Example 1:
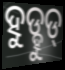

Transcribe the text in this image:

ହୁଡ୍ହୁଡ୍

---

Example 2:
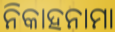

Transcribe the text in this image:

ନିକାହନାମା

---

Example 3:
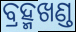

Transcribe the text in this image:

ବ୍ରହ୍ମଖଣ୍ଡ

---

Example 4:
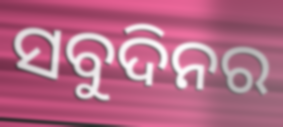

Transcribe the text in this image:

ସବୁଦିନର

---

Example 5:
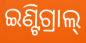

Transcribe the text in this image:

ଇଣ୍ଟିଗ୍ରାଲ୍